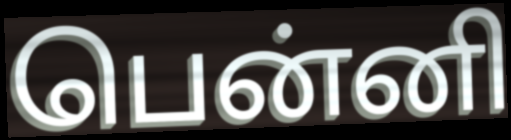
பென்னி